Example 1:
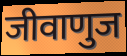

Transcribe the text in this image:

जीवाणुज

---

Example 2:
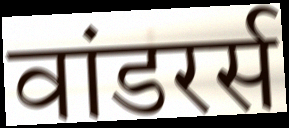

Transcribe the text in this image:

वांडरर्स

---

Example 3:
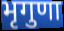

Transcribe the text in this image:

भृगुणा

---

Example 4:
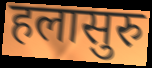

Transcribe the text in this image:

हलासुरु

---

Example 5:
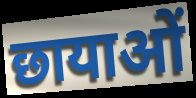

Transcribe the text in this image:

छायाओं